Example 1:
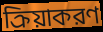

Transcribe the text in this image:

ক্রিয়াকরণ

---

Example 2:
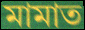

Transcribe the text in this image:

মামাত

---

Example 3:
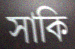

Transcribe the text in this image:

সাকি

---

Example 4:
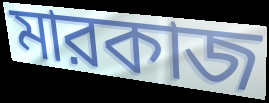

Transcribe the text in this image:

মারকাজ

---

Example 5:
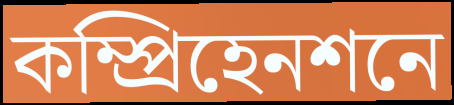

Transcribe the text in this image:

কম্প্রিহেনশনে